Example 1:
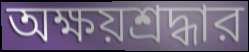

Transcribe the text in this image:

অক্ষয়শ্রদ্ধার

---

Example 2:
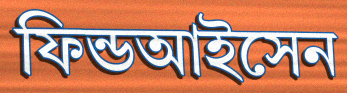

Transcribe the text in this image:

ফিন্ডআইসেন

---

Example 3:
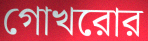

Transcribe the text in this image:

গোখরোর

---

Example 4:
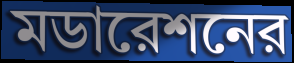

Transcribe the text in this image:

মডারেশনের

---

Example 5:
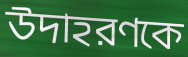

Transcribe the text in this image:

উদাহরণকে